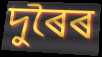
দুৰৈৰ